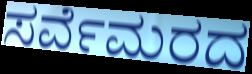
ಸರ್ವೆಮರದ